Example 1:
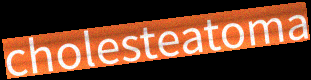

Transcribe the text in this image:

cholesteatoma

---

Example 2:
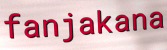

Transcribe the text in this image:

fanjakana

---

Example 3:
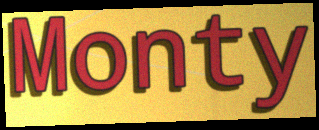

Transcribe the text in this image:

Monty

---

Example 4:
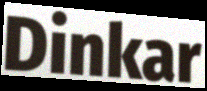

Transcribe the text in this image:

Dinkar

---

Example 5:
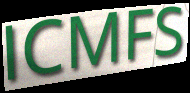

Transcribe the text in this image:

ICMFS